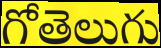
గోతెలుగు